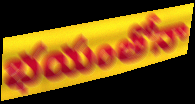
భయంతోనా